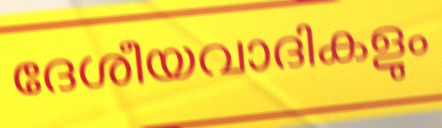
ദേശീയവാദികളും